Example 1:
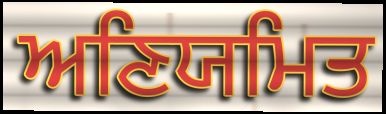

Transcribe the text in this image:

ਅਣਿਯਮਿਤ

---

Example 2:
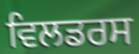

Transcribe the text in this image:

ਵਿਲਡਰਸ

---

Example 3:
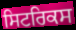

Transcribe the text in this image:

ਸਿਟਰਿਕਸ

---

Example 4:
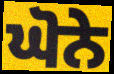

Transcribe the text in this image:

ਘੋਨੇ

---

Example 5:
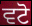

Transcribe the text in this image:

ਵਟੋ